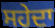
ਸਹੇਦਾ